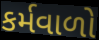
કર્મવાળો